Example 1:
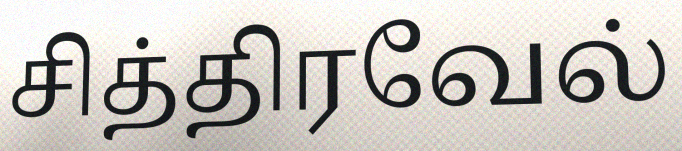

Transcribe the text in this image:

சித்திரவேல்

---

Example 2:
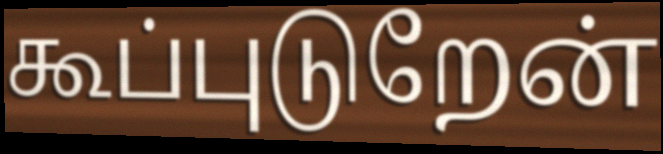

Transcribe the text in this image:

கூப்புடுறேன்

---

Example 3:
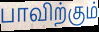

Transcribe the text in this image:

பாவிற்கும்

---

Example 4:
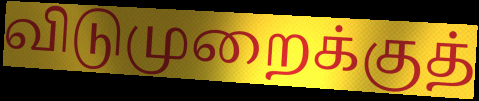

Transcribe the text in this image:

விடுமுறைக்குத்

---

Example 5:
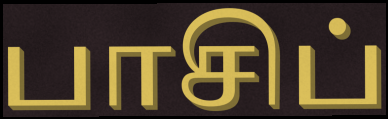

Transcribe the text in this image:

பாசிப்